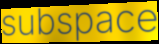
subspace